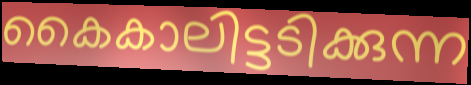
കൈകാലിട്ടടിക്കുന്ന